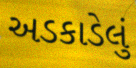
અડકાડેલું